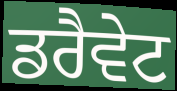
ਡਰੈਵੇਟ